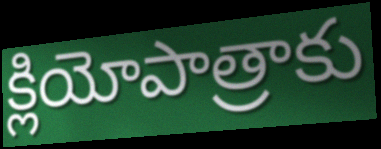
క్లియోపాత్రాకు